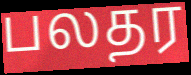
பலதர